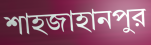
শাহজাহানপুর